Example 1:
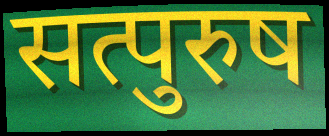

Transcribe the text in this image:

सत्पुरुष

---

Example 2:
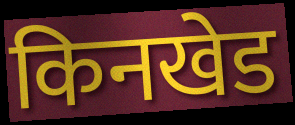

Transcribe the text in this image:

किनखेड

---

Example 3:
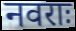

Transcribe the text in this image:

नवराः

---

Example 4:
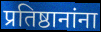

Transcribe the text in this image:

प्रतिष्ठानांना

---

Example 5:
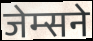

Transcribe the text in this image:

जेम्सने